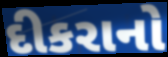
દીકરાનો